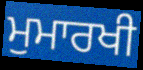
ਮੁਮਾਰਖੀ